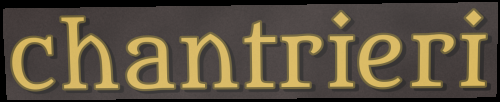
chantrieri